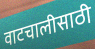
वाटचालीसाठी